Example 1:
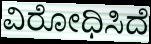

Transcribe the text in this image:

ವಿರೋಧಿಸಿದೆ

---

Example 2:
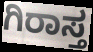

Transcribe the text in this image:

ಗಿರಾಸ್ತ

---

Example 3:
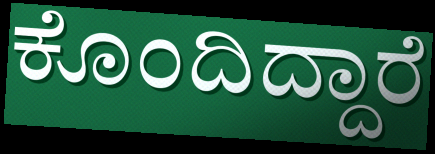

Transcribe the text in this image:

ಕೊಂದಿದ್ದಾರೆ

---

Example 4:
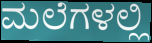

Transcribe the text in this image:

ಮಲೆಗಳಲ್ಲಿ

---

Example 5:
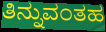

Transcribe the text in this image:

ತಿನ್ನುವಂತಹ